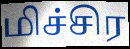
மிச்சிர